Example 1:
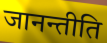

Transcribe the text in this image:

जानन्तीति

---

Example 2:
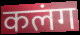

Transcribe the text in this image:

कलंग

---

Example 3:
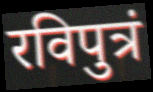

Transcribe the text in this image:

रविपुत्रं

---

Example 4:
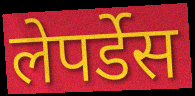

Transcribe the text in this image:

लेपर्डेस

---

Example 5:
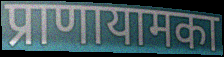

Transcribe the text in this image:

प्राणायामका